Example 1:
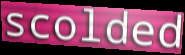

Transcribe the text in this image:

scolded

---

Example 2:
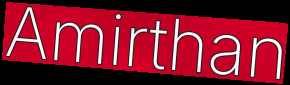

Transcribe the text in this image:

Amirthan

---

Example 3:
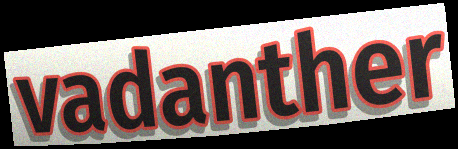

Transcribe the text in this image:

vadanther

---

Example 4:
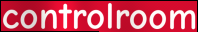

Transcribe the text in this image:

controlroom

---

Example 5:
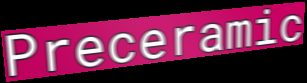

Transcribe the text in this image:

Preceramic